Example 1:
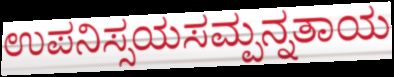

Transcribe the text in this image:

ಉಪನಿಸ್ಸಯಸಮ್ಪನ್ನತಾಯ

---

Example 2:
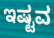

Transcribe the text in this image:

ಇಷ್ಟವ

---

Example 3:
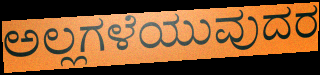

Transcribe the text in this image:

ಅಲ್ಲಗಳೆಯುವುದರ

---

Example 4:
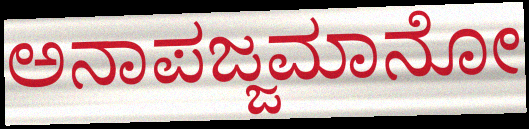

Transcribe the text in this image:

ಅನಾಪಜ್ಜಮಾನೋ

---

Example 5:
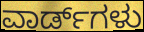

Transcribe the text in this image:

ವಾರ್ಡ್‌ಗಳು